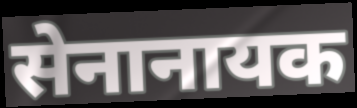
सेनानायक